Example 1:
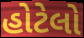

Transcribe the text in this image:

હોટેલો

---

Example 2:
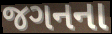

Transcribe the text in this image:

જગનના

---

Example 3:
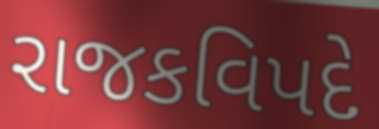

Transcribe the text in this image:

રાજકવિપદે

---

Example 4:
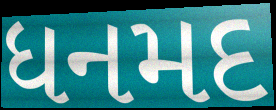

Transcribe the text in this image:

ધનમદ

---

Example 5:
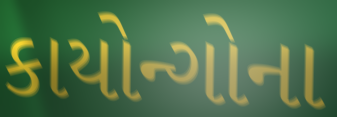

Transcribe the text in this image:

કાયોન્ગોના